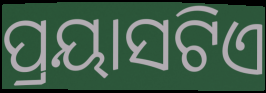
ପ୍ରୟାସଟିଏ